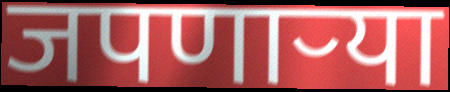
जपणाऱ्या